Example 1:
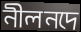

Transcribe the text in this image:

নীলনদে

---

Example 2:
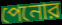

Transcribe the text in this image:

পেনোর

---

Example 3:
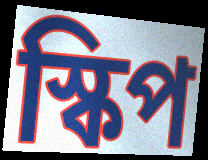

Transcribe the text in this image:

স্কিপ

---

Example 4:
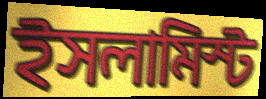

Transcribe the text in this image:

ইসলামিস্ট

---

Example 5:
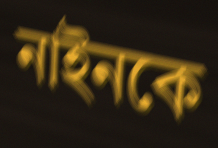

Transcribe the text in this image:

নাইনকে